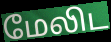
மேலிட